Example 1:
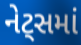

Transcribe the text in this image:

નેટ્સમાં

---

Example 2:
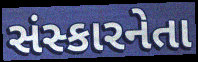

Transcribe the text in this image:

સંસ્કારનેતા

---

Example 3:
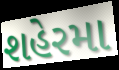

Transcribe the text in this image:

શહેરમા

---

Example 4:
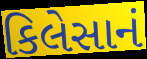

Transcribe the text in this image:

કિલેસાનં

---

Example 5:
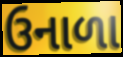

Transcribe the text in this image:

ઉનાળા